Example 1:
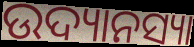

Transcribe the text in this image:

ଉଦ୍ୟାନସ୍ୟା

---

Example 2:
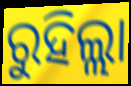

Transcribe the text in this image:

ରୁହିଲ୍ଲା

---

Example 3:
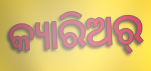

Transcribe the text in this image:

କ୍ୟାରିଅର୍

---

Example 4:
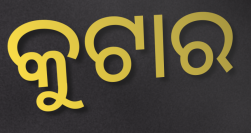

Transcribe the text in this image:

କୁଟାର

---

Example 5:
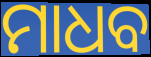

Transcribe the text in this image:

ମାଧବ